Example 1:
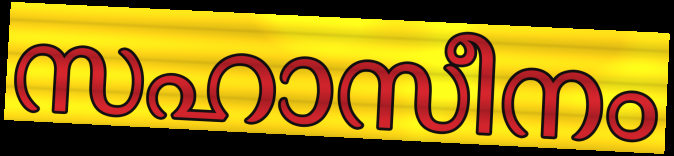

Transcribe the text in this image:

സഹാസീനം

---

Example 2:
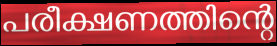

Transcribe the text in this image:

പരീക്ഷണത്തിന്റെ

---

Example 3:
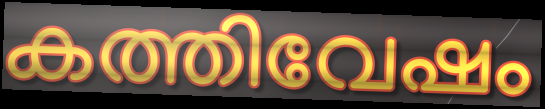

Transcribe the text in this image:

കത്തിവേഷം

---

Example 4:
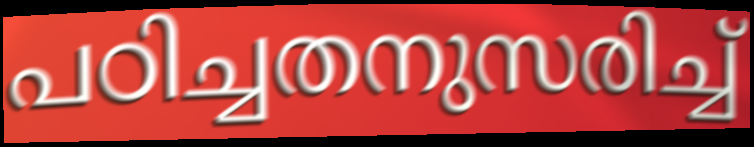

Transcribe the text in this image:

പഠിച്ചതനുസരിച്ച്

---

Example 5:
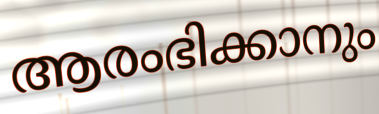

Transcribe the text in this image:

ആരംഭിക്കാനും